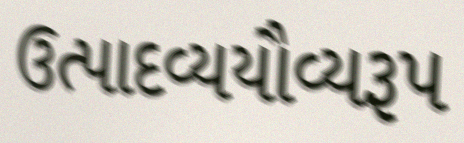
ઉત્પાદવ્યયૌવ્યરૂપ